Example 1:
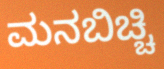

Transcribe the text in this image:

ಮನಬಿಚ್ಚಿ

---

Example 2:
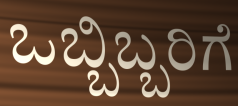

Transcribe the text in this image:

ಒಬ್ಬಿಬ್ಬರಿಗೆ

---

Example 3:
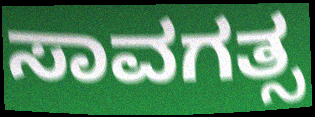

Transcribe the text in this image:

ಸಾವಗತ್ಸ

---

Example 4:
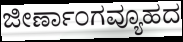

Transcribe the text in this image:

ಜೀರ್ಣಾಂಗವ್ಯೂಹದ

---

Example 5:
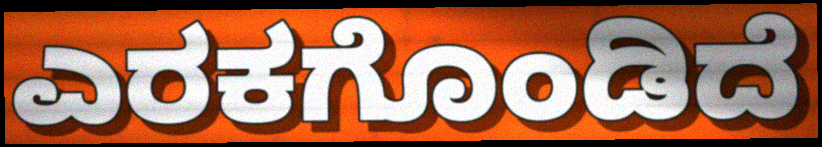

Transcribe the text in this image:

ಎರಕಗೊಂಡಿದೆ